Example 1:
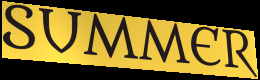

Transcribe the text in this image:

SUMMER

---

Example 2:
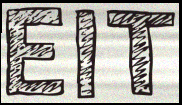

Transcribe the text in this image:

EIT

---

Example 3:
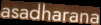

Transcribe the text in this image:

asadharana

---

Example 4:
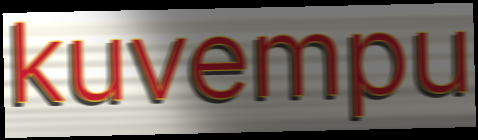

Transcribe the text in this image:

kuvempu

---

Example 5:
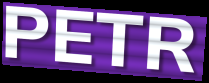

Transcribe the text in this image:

PETR